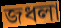
জধলা